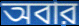
অবার